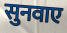
सुनवाए